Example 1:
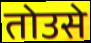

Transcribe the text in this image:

तोउसे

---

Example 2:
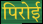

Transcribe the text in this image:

पिरोई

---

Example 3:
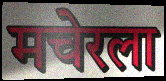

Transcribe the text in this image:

मचेरला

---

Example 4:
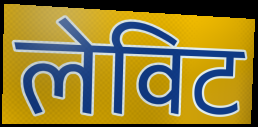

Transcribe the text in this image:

लेविट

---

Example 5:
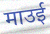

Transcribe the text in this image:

माउई